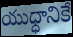
యుధ్ధానికే